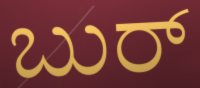
ಬುರ್